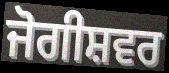
ਜੋਗੀਸ਼ਵਰ